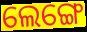
ଲେଙ୍ଗେ